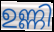
ഉണ്ണി